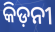
କିଡ଼ନୀ